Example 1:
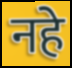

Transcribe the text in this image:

नहे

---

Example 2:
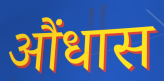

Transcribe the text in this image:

औंधास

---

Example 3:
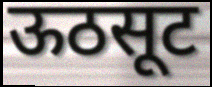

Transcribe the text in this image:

ऊठसूट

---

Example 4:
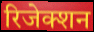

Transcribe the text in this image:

रिजेक्शन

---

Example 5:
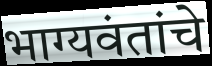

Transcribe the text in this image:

भाग्यवंतांचे